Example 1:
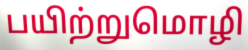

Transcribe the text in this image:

பயிற்றுமொழி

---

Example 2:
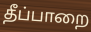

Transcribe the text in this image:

தீப்பாறை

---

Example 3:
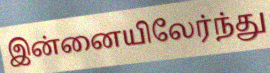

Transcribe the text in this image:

இன்னையிலேர்ந்து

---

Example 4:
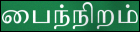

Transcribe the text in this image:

பைந்நிறம்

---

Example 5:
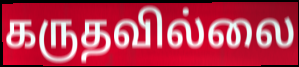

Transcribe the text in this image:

கருதவில்லை